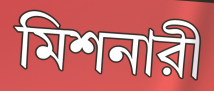
মিশনারী